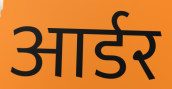
आर्डर